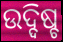
ଉଦ୍ଦିଷ୍ଚ